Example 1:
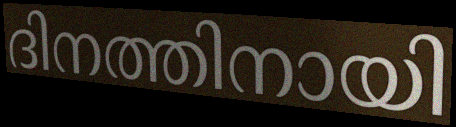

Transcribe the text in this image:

ദിനത്തിനായി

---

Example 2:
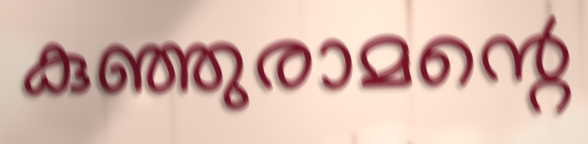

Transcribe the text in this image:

കുഞ്ഞുരാമന്റെ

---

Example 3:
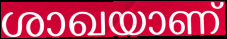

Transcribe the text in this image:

ശാഖയാണ്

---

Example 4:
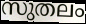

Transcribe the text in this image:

സുതലം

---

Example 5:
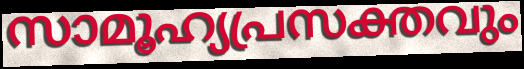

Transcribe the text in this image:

സാമൂഹ്യപ്രസക്തവും